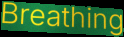
Breathing